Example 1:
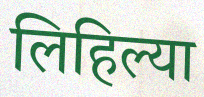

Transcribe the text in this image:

लिहिल्या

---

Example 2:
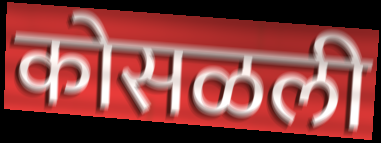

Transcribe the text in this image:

कोसळली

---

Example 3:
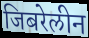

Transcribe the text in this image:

जिबरेलीन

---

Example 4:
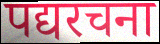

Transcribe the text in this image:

पद्यरचना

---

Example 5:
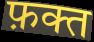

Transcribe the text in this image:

फ़क्त